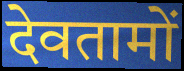
देवतामों